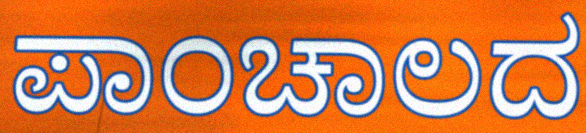
ಪಾಂಚಾಲದ